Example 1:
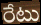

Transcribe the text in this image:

రేటు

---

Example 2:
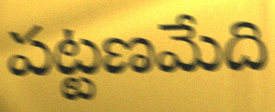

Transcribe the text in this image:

పట్టణమేది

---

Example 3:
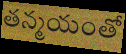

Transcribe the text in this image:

తన్మయంతో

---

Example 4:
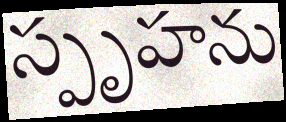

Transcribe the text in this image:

స్పృహను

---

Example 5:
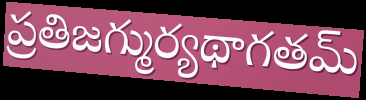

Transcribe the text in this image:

ప్రతిజగ్ముర్యథాగతమ్